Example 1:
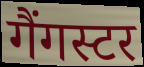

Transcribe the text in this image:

गैंगस्टर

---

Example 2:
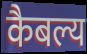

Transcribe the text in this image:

कैबल्य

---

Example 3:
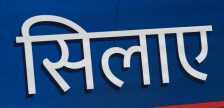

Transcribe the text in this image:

सिलाए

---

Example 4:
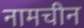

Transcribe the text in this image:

नामचीन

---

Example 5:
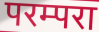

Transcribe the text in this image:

परम्परा